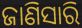
ଜାଣିସାରି